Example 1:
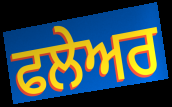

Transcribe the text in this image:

ਫਲੇਅਰ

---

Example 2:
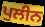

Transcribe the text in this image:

ਪੁਲੀਨ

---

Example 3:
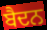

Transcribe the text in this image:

ਬੈਦਨ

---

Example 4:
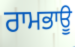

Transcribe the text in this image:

ਰਾਮਭਾਊ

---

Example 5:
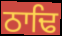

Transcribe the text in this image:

ਠਾਢਿ